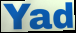
Yad